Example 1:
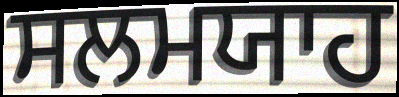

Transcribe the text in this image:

ਸਲਮਯਾਹ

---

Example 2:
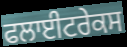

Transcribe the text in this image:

ਫਲਾਈਟਰੇਕਸ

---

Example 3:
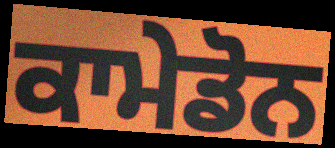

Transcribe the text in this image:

ਕਾਮੇਡੋਨ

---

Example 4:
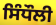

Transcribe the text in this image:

ਸਿੰਧੌਲੀ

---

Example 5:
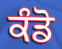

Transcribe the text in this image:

ਕੰਡੋ